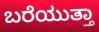
ಬರೆಯುತ್ತಾ